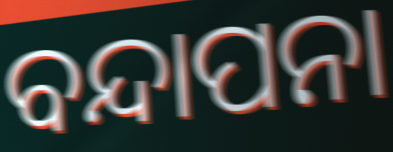
ବନ୍ଦାପନା